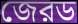
জেরড